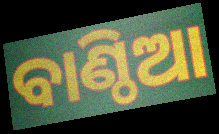
ବାଣ୍ଠିଆ